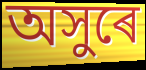
অসুৰে